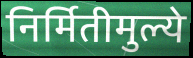
निर्मितीमुल्ये